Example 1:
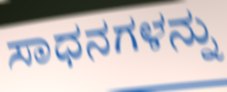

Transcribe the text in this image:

ಸಾಧನಗಳನ್ನು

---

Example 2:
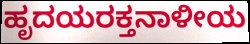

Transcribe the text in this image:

ಹೃದಯರಕ್ತನಾಳೀಯ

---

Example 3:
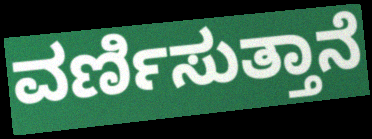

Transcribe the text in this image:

ವರ್ಣಿಸುತ್ತಾನೆ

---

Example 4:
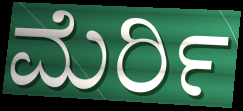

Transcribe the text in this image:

ಮೆರ್ರಿ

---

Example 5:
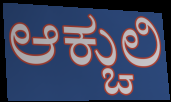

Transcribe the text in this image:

ಆಕ್ಚುಲಿ